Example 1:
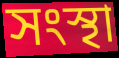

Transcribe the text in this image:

সংস্থা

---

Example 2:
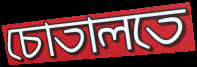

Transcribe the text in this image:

চোতালতে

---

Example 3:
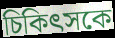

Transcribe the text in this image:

চিকিৎসকে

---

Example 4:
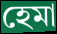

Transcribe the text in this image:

হেমা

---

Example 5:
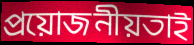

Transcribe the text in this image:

প্ৰয়োজনীয়তাই